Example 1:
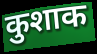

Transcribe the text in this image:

कुशाक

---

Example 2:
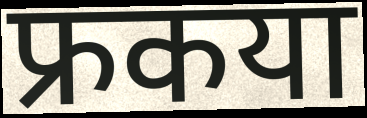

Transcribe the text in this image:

फ्रकया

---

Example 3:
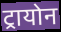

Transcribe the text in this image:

ट्रायोन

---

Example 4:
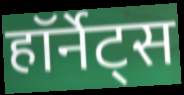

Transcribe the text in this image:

हॉर्नेट्स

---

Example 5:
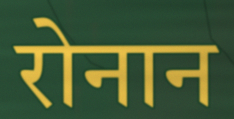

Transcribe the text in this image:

रोनान